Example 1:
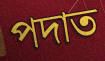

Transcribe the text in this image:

পদাত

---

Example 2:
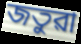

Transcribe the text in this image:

জতুৱা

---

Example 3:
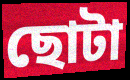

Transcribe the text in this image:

ছোটা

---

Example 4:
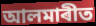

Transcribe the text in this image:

আলমাৰীত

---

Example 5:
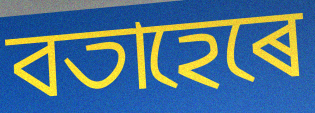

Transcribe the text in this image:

বতাহেৰে